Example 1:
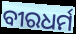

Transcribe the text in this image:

ବୀରଧର୍ମ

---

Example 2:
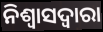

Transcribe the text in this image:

ନିଶ୍ୱାସଦ୍ୱାରା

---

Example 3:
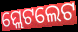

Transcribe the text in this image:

ପ୍ଲେଟଲେଟ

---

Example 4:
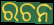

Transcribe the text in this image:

ରଚନ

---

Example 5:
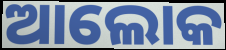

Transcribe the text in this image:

ଆଲୋକ